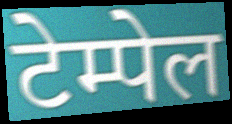
टेम्पेल